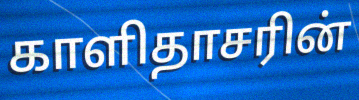
காளிதாசரின்